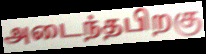
அடைந்தபிறகு